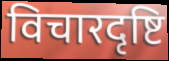
विचारदृष्टि